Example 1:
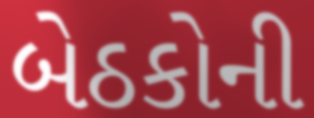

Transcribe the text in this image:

બેઠકોની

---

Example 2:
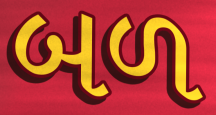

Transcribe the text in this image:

બળ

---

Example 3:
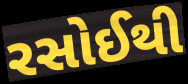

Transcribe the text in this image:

રસોઈથી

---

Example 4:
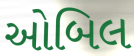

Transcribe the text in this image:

ઓબિલ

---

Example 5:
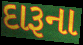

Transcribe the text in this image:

દારૂના